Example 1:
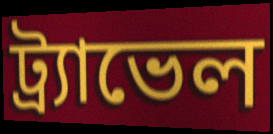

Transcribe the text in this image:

ট্র্যাভেল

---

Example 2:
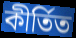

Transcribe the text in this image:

কীর্তিত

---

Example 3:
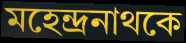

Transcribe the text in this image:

মহেন্দ্রনাথকে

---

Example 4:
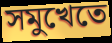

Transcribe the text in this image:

সমুখেতে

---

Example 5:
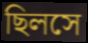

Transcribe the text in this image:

ছিলসে